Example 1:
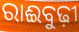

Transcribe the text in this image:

ରାଈବୁଢ଼ୀ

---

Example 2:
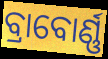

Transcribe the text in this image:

ବ୍ରାବୋର୍ଣ୍ଣ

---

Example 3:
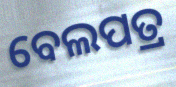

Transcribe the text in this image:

ବେଲପତ୍ର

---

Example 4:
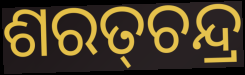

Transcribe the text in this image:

ଶରତ୍‌ଚନ୍ଦ୍ର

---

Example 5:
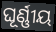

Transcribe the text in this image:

ଘୂର୍ଣ୍ଣୀୟ